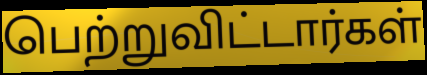
பெற்றுவிட்டார்கள்